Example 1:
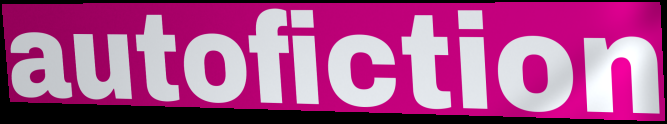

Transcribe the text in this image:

autofiction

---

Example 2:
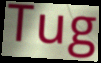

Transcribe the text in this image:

Tug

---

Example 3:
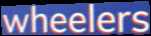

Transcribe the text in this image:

wheelers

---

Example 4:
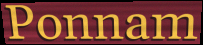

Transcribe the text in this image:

Ponnam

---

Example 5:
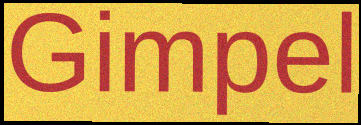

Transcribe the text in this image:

Gimpel